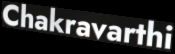
Chakravarthi